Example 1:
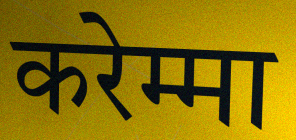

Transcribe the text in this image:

करेम्मा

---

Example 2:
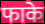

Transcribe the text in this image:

फाके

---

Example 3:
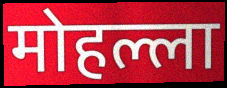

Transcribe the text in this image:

मोहल्ला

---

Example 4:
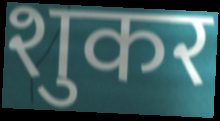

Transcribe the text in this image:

शुकर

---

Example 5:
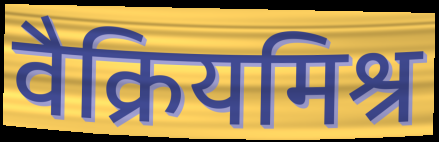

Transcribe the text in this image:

वैक्रियमिश्र